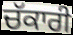
ਚੱਕਾਰੀ